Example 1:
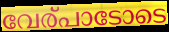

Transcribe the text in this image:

വേര്പാടോടെ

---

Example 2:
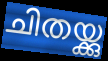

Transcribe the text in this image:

ചിതയ്ക്കു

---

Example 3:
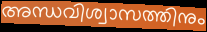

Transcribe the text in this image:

അന്ധവിശ്വാസത്തിനും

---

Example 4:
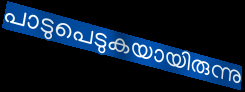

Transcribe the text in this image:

പാടുപെടുകയായിരുന്നു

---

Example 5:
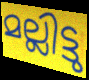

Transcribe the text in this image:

മല്ലിട്ടു